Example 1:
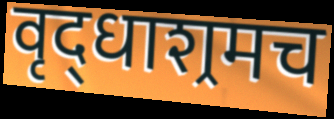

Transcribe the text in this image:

वृद्धाश्रमच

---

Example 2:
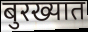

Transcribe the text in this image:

बुरख्यात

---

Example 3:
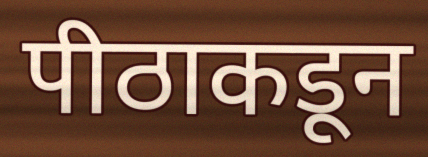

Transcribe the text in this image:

पीठाकडून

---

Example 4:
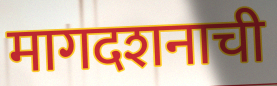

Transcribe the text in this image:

मागदशनाची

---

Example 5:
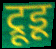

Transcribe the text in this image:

ट्रूडू